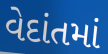
વેદાંતમાં